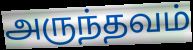
அருந்தவம்